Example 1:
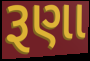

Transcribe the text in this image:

રૂણા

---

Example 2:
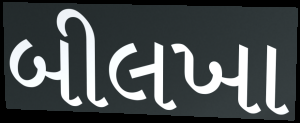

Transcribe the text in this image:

બીલખા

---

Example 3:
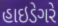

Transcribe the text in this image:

હાઇડેગરે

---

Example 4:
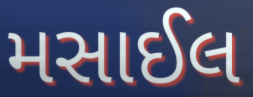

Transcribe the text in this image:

મસાઈલ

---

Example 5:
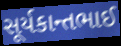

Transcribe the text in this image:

સૂર્યકાન્તભાઈ